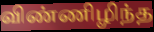
விண்ணிழிந்த